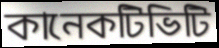
কানেকটিভিটি